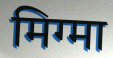
मिग्मा